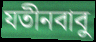
যতীনবাবু